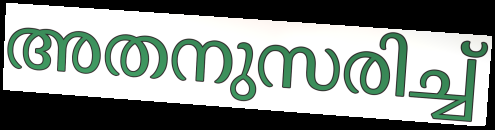
അതനുസരിച്ച്